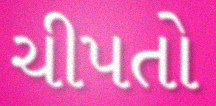
ચીપતો